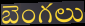
బెంగలు